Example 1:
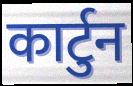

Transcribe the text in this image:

कार्टुन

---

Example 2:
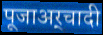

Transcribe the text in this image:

पूजाअर्चादी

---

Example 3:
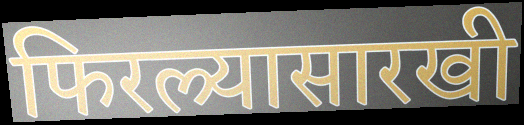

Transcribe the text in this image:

फिरल्यासारखी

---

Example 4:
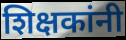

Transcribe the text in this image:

शिक्षकांनी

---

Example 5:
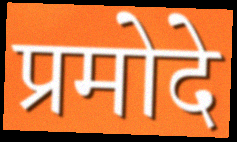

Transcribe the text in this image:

प्रमोदे